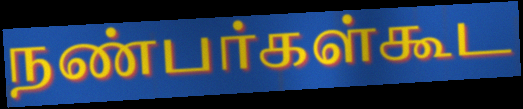
நண்பர்கள்கூட